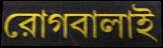
রোগবালাই